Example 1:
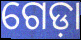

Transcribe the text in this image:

ଗେଡ଼ା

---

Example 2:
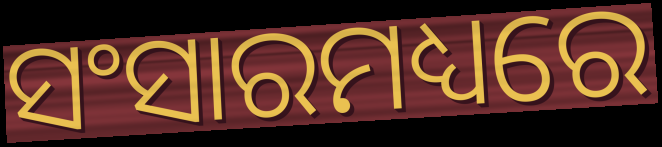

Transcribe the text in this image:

ସଂସାରମଧ୍ୟରେ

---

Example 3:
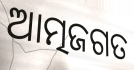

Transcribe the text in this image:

ଆତ୍ମଜଗତ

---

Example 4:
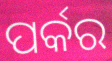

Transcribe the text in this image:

ପର୍କର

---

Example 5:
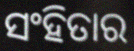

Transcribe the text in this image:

ସଂହିତାର